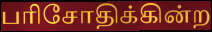
பரிசோதிக்கின்ற